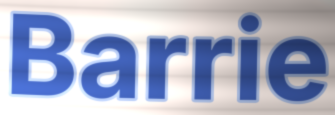
Barrie